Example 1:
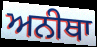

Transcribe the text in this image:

ਅਨੀਥਾ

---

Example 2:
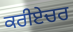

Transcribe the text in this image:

ਕਰੀਏਚਰ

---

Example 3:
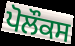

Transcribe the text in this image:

ਪੋਲੌਕਸ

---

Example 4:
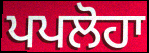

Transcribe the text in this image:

ਪਪਲੋਹਾ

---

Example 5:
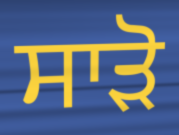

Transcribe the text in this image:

ਸਾੜੋ